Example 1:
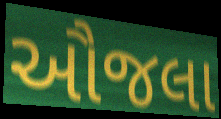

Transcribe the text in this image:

ઔજલા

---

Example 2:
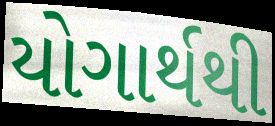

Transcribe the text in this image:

યોગાર્થથી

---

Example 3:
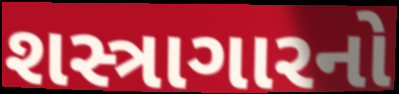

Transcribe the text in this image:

શસ્ત્રાગારનો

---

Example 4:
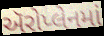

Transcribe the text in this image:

ઍરોપ્લેનમાં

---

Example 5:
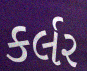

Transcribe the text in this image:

કર્લર